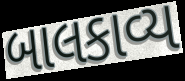
બાલકાવ્ય